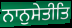
ਨਾਨੁਸੇਤੀਤਿ